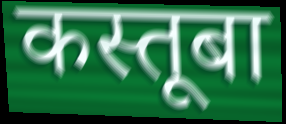
कस्तूबा